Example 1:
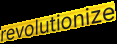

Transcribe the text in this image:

revolutionize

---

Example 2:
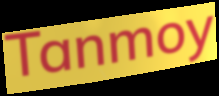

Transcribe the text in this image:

Tanmoy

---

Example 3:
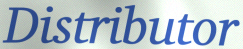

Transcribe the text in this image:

Distributor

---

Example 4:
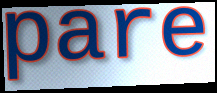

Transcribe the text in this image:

pare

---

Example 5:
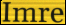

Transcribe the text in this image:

Imre